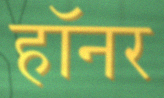
हॉनर